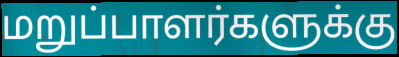
மறுப்பாளர்களுக்கு